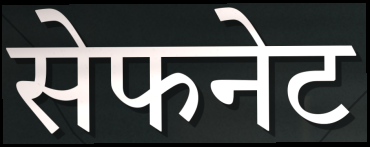
सेफनेट